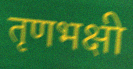
तृणभक्षी